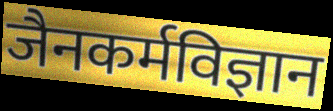
जैनकर्मविज्ञान